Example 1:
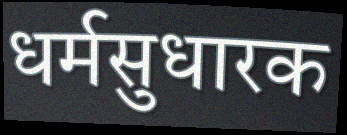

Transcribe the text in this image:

धर्मसुधारक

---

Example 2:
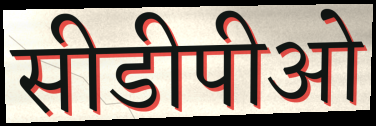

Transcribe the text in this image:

सीडीपीओ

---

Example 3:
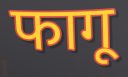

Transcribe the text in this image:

फागू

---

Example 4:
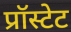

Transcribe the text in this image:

प्रॉस्टेट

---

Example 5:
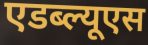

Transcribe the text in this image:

एडब्ल्यूएस